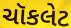
ચૉકલેટ